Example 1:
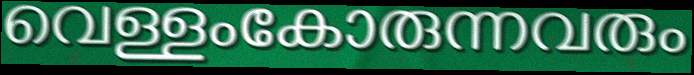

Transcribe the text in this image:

വെള്ളംകോരുന്നവരും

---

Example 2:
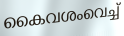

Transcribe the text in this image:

കൈവശംവെച്ച്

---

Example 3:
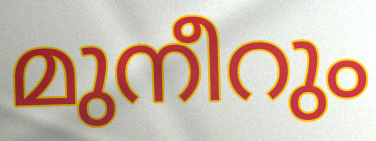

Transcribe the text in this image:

മുനീറും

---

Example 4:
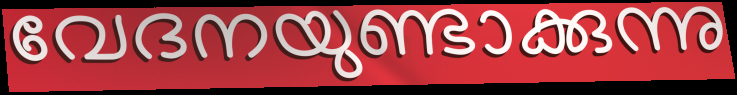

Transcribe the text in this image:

വേദനയുണ്ടാക്കുന്നു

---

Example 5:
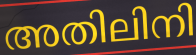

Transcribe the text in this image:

അതിലിനി